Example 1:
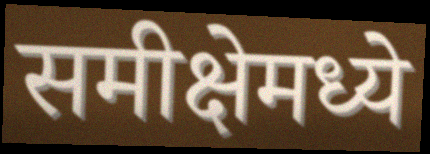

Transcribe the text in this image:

समीक्षेमध्ये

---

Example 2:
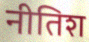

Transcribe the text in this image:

नीतिश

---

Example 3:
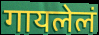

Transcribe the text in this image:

गायलेलं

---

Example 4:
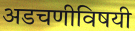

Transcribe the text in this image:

अडचणीविषयी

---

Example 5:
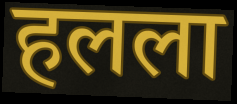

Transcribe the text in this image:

हलला